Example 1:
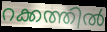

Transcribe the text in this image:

റക്കത്തിൽ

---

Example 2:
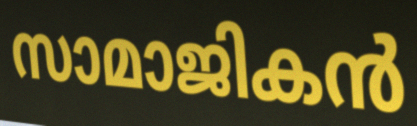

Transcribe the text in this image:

സാമാജികൻ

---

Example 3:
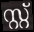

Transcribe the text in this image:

സ്റ്റ്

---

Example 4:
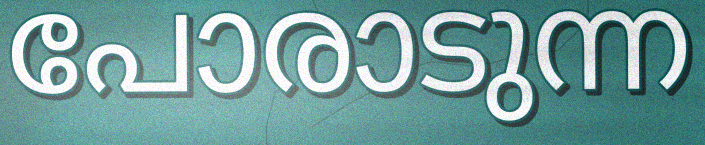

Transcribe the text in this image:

പോരാടുന്ന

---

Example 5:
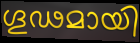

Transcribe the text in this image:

ഗൂഢമായി